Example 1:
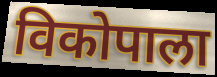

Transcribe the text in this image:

विकोपाला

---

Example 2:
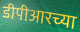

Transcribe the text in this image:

डीपीआरच्या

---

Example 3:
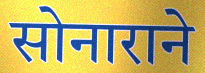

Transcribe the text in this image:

सोनाराने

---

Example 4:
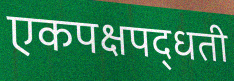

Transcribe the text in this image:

एकपक्षपद्धती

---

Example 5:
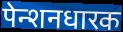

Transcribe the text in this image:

पेन्शनधारक